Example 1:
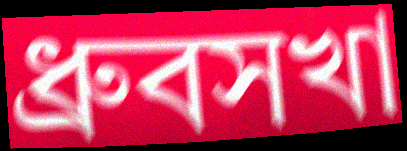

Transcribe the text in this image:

ধ্রুবসখা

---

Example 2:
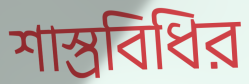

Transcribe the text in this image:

শাস্ত্রবিধির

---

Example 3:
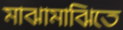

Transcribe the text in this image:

মাঝামাঝিতে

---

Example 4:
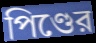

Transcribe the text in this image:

পিণ্ডের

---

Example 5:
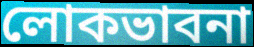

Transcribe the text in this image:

লোকভাবনা